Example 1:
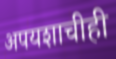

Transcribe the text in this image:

अपयशाचीही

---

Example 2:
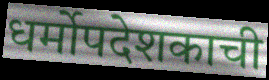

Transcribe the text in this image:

धर्मोपदेशकाची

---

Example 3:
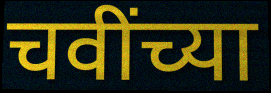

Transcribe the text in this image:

चवींच्या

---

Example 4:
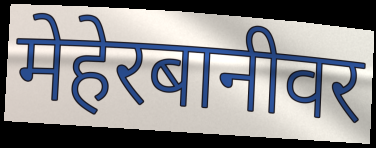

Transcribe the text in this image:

मेहेरबानीवर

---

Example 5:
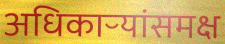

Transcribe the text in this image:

अधिकाऱ्यांसमक्ष